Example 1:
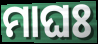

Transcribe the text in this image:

ମାଘଃ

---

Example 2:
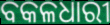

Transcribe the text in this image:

ବକଳଧାରୀ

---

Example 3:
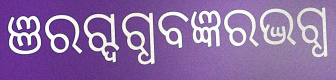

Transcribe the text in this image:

ଞରଗ୍ଦଗ୍ଧବଜ୍ଞରଦ୍ଭଗ୍ଧ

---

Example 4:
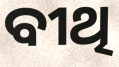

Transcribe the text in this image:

ବୀଥି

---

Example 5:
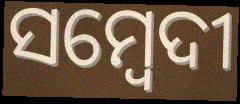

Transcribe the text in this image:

ସମ୍ବେଦୀ